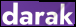
darak